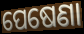
ପେଷେଣା